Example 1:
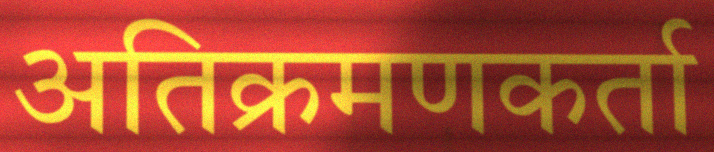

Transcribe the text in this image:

अतिक्रमणकर्ता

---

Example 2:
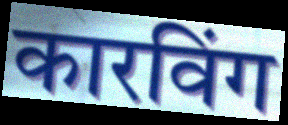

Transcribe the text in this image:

कारविंग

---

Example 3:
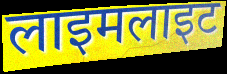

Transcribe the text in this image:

लाइमलाइट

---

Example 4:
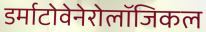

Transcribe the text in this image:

डर्माटोवेनेरोलॉजिकल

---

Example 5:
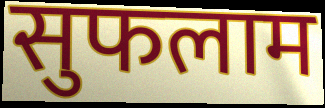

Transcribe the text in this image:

सुफलाम